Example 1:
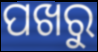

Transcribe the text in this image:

ପଖରୁ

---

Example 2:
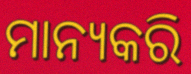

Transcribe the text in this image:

ମାନ୍ୟକରି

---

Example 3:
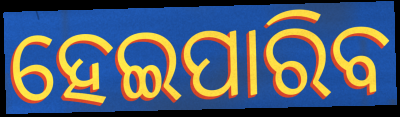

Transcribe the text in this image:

ହେଇପାରିବ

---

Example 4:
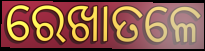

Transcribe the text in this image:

ରେଖାତଳେ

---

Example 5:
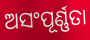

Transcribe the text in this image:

ଅସଂପୂର୍ଣ୍ଣତା